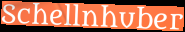
Schellnhuber